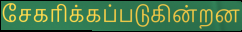
சேகரிக்கப்படுகின்றன